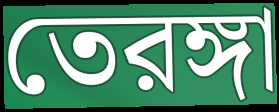
তেরঙ্গা